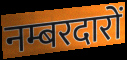
नम्बरदारों